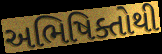
અભિષિક્તોથી